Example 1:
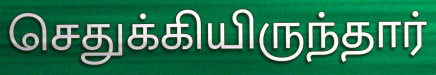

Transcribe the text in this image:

செதுக்கியிருந்தார்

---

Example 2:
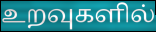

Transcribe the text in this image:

உறவுகளில்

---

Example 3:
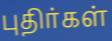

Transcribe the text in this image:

புதிர்கள்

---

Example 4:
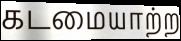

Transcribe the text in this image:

கடமையாற்ற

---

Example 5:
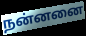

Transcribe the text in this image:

நன்னனை